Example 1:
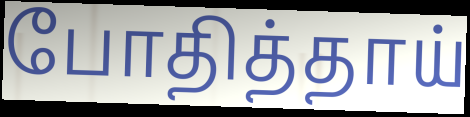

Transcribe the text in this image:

போதித்தாய்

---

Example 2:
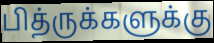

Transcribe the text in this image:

பித்ருக்களுக்கு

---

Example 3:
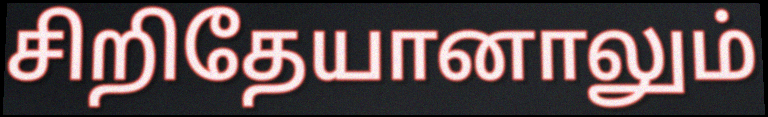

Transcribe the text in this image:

சிறிதேயானாலும்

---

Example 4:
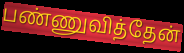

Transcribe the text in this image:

பண்ணுவித்தேன்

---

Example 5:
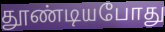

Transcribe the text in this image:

தூண்டியபோது